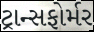
ટ્રાન્સફોર્મર